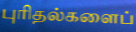
புரிதல்களைப்